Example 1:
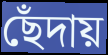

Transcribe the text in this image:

ছেঁদায়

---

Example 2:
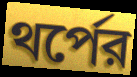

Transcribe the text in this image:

থর্পের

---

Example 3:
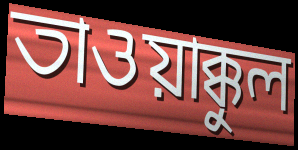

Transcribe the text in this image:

তাওয়াক্কুল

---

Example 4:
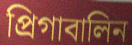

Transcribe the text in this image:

প্রিগাবালিন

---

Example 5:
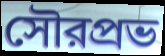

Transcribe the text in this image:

সৌরপ্রভ